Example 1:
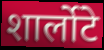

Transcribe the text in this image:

शार्लोटे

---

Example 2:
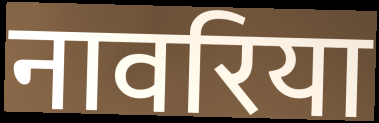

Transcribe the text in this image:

नावरिया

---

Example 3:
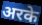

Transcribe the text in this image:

अरके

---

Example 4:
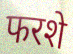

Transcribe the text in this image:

फरशे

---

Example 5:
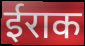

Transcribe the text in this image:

ईराक